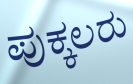
ಪುಕ್ಕಲರು